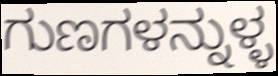
ಗುಣಗಳನ್ನುಳ್ಳ